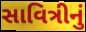
સાવિત્રીનું